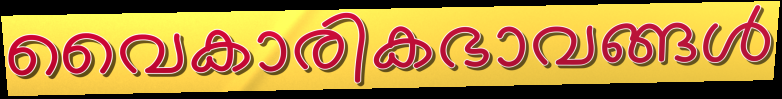
വൈകാരികഭാവങ്ങൾ